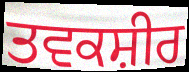
ਤਵਕਸ਼ੀਰ